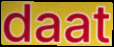
daat